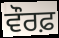
ਵੌਰਫ਼